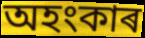
অহংকাৰ